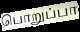
பொறுப்பா